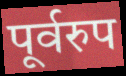
पूर्वरुप